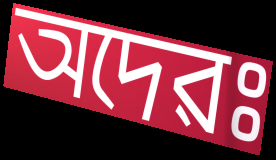
অদেৱঃ